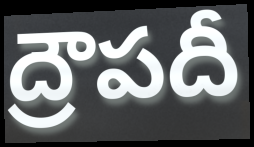
ద్రౌపదీ